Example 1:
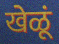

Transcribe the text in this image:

खेळूं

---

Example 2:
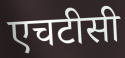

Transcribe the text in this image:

एचटीसी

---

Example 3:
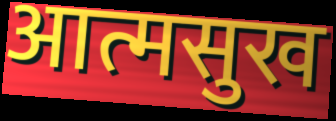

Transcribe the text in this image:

आत्मसुख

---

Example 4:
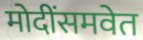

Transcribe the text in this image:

मोदींसमवेत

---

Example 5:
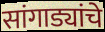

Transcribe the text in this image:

सांगाड्यांचे